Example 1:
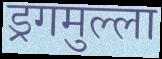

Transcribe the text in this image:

ड्रगमुल्ला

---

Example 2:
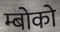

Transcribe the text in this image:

म्बोको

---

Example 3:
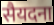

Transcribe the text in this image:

सैयदना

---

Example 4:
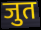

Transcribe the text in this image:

जुत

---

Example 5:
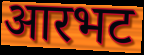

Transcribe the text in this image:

आरभट